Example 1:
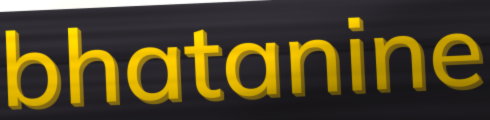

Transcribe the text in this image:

bhatanine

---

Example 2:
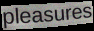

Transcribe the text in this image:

pleasures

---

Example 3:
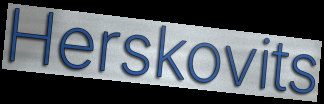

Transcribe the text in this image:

Herskovits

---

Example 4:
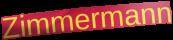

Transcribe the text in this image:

Zimmermann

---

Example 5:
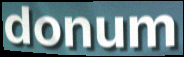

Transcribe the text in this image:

donum